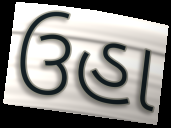
ઉહા